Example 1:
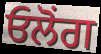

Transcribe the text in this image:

ਓਲੋਂਗ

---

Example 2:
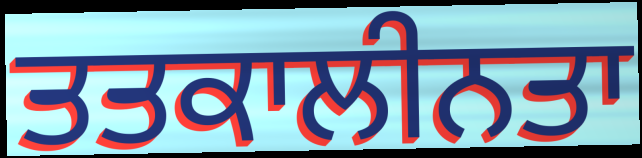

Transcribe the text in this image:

ਤਤਕਾਲੀਨਤਾ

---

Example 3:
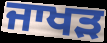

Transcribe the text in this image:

ਜਾਖੜ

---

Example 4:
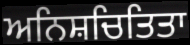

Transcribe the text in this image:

ਅਨਿਸ਼ਚਿਤਿਤਾ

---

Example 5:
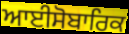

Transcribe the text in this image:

ਆਈਸੋਬਾਰਿਕ